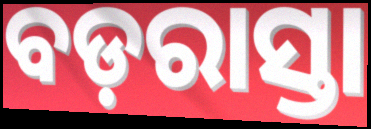
ବଡ଼ରାସ୍ତା